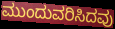
ಮುಂದುವರಿಸಿದವು